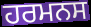
ਹਰਮਨਸ